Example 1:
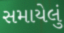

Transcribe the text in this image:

સમાયેલું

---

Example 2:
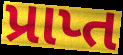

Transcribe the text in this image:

પ્રાપ્ત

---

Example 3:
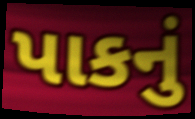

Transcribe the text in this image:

પાકનું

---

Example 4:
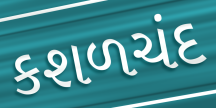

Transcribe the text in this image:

કશળચંદ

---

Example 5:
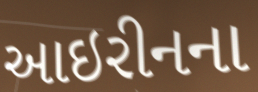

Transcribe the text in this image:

આઇરીનના